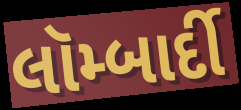
લૉમ્બાર્દી